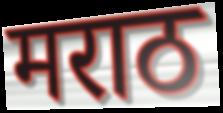
मराठ